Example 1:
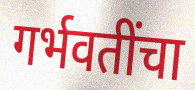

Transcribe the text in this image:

गर्भवतींचा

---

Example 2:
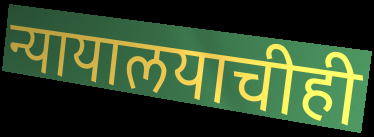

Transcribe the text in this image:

न्यायालयाचीही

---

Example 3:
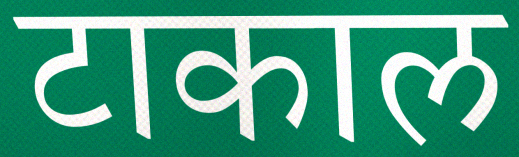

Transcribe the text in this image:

टाकाल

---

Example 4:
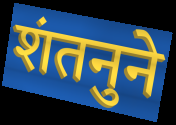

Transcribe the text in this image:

शंतनुने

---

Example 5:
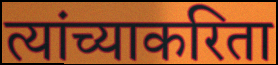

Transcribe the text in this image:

त्यांच्याकरिता